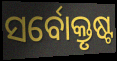
ସର୍ବୋକ୍ତୃଷ୍ଟ